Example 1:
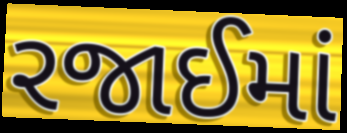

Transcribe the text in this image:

રજાઈમાં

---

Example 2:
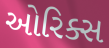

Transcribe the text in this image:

ઓરિક્સ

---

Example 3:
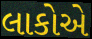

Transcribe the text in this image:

લાકોએ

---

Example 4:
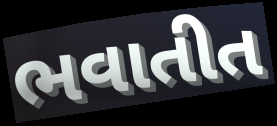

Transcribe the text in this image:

ભવાતીત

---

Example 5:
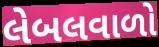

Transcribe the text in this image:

લેબલવાળો